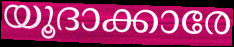
യൂദാക്കാരേ